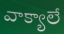
వాక్యాలే